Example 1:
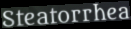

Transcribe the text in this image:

Steatorrhea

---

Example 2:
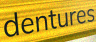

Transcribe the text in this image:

dentures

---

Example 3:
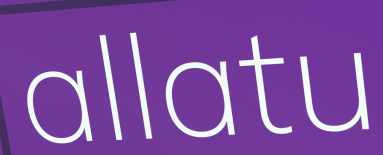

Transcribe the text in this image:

allatu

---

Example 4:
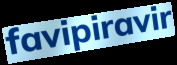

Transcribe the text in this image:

favipiravir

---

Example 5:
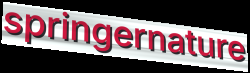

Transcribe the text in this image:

springernature